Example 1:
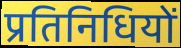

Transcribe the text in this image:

प्रतिनिधियों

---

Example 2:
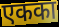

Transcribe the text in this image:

एकका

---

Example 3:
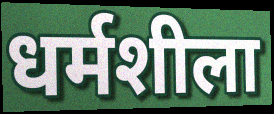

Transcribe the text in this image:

धर्मशीला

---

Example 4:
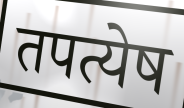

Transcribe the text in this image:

तपत्येष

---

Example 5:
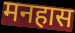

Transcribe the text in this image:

मनहास